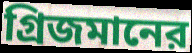
গ্রিজমানের